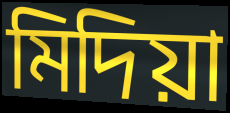
মিদিয়া